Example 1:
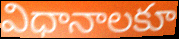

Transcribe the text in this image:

విధానాలకూ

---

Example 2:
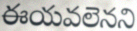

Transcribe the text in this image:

ఈయవలెనని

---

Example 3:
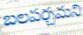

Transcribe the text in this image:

బలపర్చమని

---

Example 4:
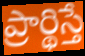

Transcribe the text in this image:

ప్రార్థిస్తే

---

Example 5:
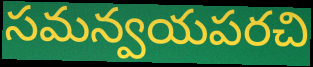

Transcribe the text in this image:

సమన్వయపరచి